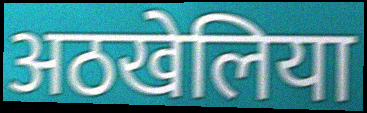
अठखेलिया